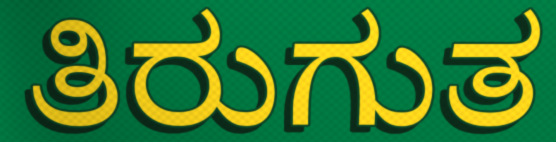
ತಿರುಗುತ